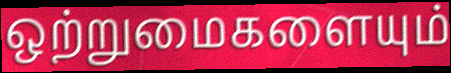
ஒற்றுமைகளையும்